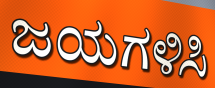
ಜಯಗಳಿಸಿ